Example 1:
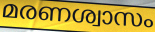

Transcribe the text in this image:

മരണശ്വാസം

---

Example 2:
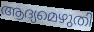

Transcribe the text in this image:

ആദ്യമെഴുതി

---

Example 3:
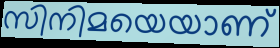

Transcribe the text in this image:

സിനിമയെയാണ്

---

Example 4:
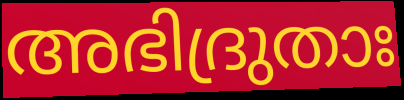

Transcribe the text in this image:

അഭിദ്രുതാഃ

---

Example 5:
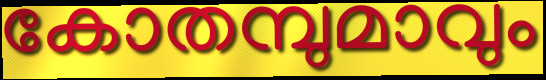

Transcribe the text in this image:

കോതമ്പുമാവും